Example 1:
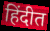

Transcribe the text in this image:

हिंदीत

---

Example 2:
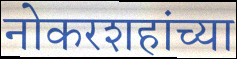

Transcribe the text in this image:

नोकरशहांच्या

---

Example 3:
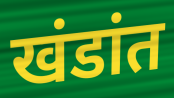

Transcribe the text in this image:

खंडांत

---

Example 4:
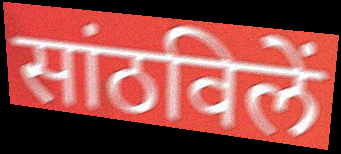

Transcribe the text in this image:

सांठविलें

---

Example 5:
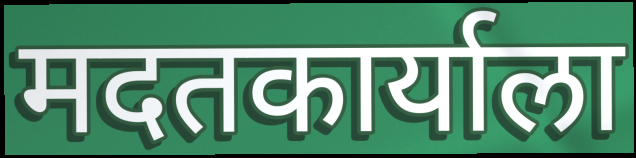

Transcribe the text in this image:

मदतकार्याला